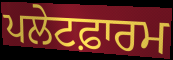
ਪਲੇਟਫ਼ਾਰਮ